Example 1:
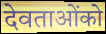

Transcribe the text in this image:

देवताओंको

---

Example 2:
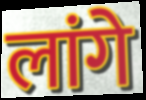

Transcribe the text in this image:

लांगे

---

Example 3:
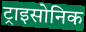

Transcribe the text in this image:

ट्राइसोनिक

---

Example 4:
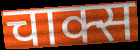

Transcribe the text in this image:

चाक्स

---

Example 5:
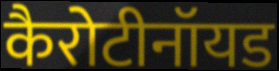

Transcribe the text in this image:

कैरोटीनॉयड